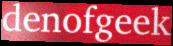
denofgeek